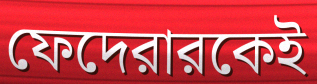
ফেদেরারকেই